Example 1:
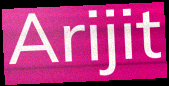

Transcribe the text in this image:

Arijit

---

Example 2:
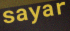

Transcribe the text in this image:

sayar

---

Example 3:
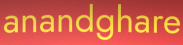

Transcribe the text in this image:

anandghare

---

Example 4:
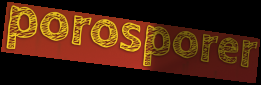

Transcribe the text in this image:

porosporer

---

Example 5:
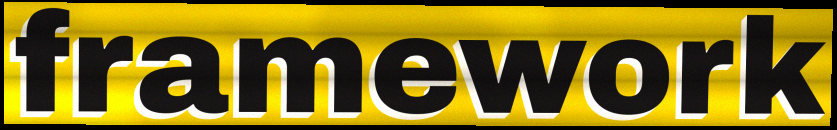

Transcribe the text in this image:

framework